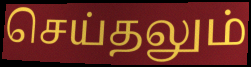
செய்தலும்